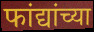
फांद्यांच्या